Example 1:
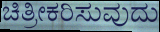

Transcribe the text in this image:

ಚಿತ್ರೀಕರಿಸುವುದು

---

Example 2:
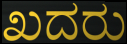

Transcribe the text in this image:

ಖದರು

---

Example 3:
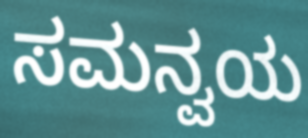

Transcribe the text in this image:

ಸಮನ್ವಯ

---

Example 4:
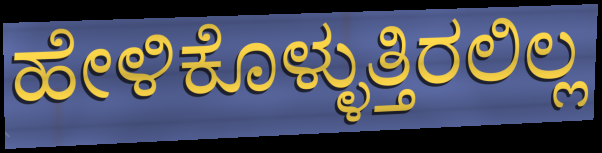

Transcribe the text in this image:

ಹೇಳಿಕೊಳ್ಳುತ್ತಿರಲಿಲ್ಲ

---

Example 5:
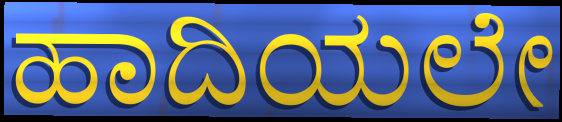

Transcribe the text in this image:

ಹಾದಿಯಲೇ